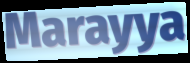
Marayya